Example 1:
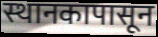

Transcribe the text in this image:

स्थानकापासून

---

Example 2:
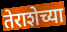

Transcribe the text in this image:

तेराशेच्या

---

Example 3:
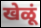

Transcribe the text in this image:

खेळूं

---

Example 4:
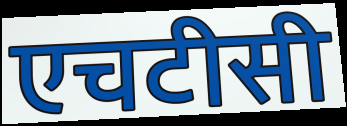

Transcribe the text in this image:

एचटीसी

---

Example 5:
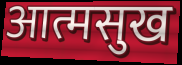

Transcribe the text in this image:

आत्मसुख